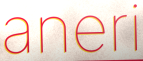
aneri